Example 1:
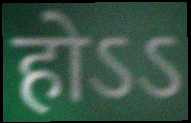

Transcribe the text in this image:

होऽऽ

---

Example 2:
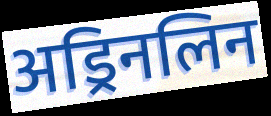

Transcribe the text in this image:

अड्रिनलिन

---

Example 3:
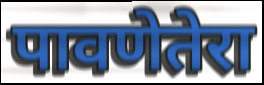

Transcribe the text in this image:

पावणेतेरा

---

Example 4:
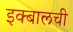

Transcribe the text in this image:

इक्बालची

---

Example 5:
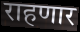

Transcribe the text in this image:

राहणार